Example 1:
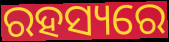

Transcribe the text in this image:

ରହସ୍ୟରେ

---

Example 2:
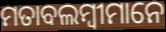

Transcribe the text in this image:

ମତାବଲମ୍ବୀମାନେ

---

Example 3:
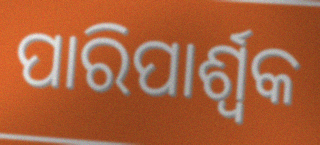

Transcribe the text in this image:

ପାରିପାର୍ଶ୍ବକ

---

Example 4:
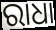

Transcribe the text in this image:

ରାଧା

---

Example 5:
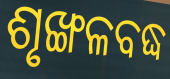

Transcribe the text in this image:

ଶୃଙ୍ଖଳବଦ୍ଧ